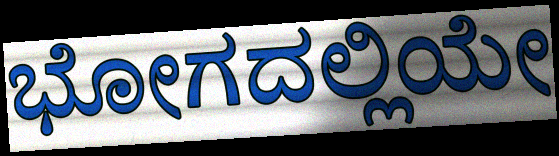
ಭೋಗದಲ್ಲಿಯೇ